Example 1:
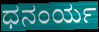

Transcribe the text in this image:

ಧನಂರ್ಯ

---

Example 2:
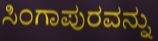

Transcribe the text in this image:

ಸಿಂಗಾಪುರವನ್ನು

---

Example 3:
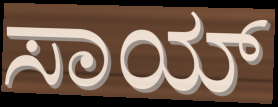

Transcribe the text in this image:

ಸಾಯ್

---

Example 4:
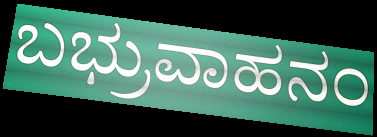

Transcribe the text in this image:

ಬಭ್ರುವಾಹನಂ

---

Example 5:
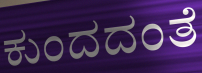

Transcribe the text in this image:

ಕುಂದದಂತೆ